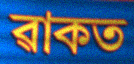
ৱাকত